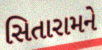
સિતારામને